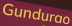
Gundurao